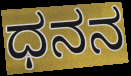
ಧನನ